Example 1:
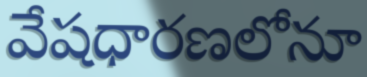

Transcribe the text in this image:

వేషధారణలోనూ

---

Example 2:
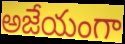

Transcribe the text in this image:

అజేయంగా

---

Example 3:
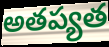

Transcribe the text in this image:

అతప్యత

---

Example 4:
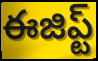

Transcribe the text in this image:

ఈజిప్ట్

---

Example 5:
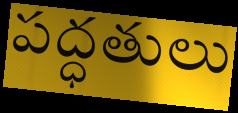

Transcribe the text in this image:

పద్ధతులు